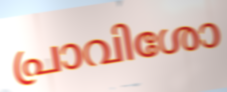
പ്രാവിശോ